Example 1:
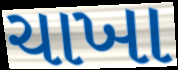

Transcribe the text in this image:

ચાખા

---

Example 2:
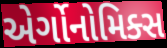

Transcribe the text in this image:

એર્ગોનોમિક્સ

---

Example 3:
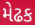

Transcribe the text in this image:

મેઢક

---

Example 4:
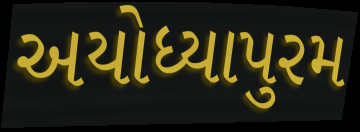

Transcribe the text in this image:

અયોધ્યાપુરમ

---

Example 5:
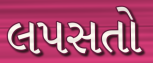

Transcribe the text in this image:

લપસતો